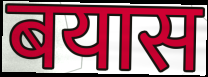
बयास